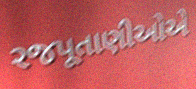
રજપૂતાણીઓએ